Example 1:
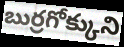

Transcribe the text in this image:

బుర్రగోక్కుని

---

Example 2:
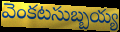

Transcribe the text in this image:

వెంకటసుబ్బయ్య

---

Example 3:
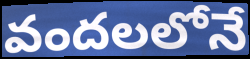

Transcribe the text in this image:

వందలలోనే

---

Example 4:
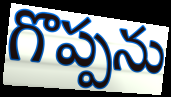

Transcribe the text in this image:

గొప్పను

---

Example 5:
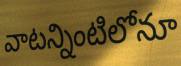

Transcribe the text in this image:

వాటన్నింటిలోనూ